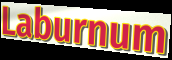
Laburnum